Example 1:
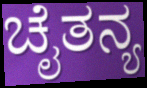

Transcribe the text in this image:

ಚೈತನ್ಯ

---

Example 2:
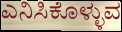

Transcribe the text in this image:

ಎನಿಸಿಕೊಳ್ಳುವ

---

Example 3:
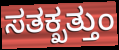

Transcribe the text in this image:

ಸತಕ್ಖತ್ತುಂ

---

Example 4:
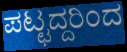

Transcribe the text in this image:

ಪಟ್ಟದ್ದರಿಂದ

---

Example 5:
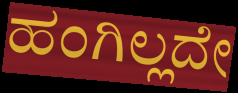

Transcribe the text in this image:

ಹಂಗಿಲ್ಲದೇ